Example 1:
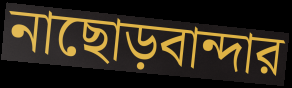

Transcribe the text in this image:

নাছোড়বান্দার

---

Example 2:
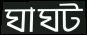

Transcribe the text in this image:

ঘাঘট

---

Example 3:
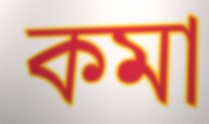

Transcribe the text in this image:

কমা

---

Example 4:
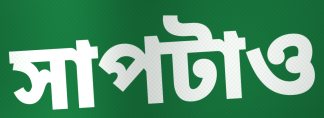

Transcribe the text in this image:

সাপটাও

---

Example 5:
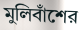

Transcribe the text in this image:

মুলিবাঁশের